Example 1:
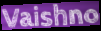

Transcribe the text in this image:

Vaishno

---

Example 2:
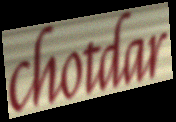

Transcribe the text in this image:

chotdar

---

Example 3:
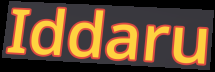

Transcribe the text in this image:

Iddaru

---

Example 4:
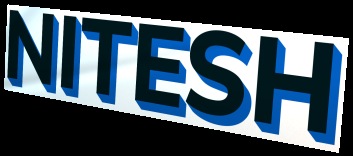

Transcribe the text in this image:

NITESH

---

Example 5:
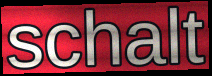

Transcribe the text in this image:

schalt